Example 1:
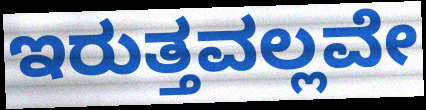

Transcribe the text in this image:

ಇರುತ್ತವಲ್ಲವೇ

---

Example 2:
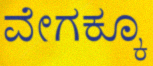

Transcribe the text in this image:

ವೇಗಕ್ಕೂ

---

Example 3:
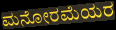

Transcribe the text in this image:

ಮನೋರಮೆಯರ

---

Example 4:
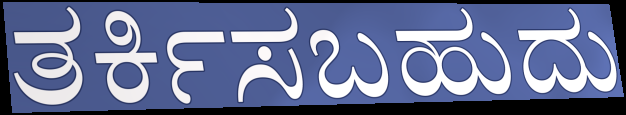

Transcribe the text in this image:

ತರ್ಕಿಸಬಹುದು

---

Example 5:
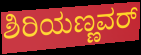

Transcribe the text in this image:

ಶಿರಿಯಣ್ಣವರ್